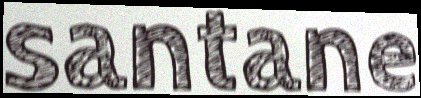
santane